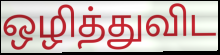
ஒழித்துவிட